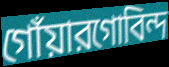
গোঁয়ারগোবিন্দ